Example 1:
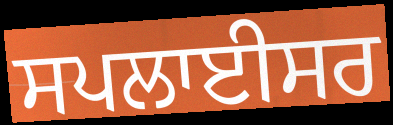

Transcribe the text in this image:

ਸਪਲਾਈਸਰ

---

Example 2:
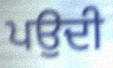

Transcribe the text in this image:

ਪਉਦੀ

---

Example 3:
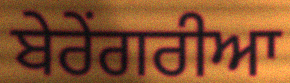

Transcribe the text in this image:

ਬੇਰੇਂਗਰੀਆ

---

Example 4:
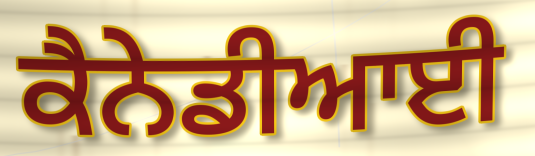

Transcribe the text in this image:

ਕੈਨੇਡੀਆਈ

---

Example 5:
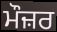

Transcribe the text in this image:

ਮੌਜ਼ਰ